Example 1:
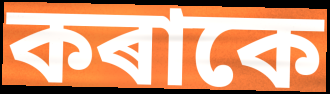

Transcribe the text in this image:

কৰাকে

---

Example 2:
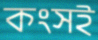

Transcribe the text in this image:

কংসই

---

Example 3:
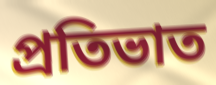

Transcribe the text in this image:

প্ৰতিভাত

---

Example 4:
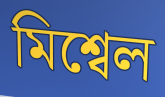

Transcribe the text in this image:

মিশ্বেল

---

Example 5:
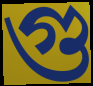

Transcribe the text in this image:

গু